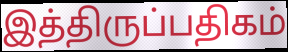
இத்திருப்பதிகம்